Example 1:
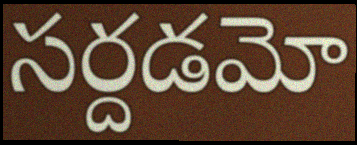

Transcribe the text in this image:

సర్దడమో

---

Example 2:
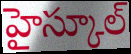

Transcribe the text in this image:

హైస్కూల్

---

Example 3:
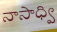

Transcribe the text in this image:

నాసాధ్వి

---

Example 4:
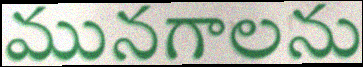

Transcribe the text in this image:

మునగాలను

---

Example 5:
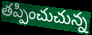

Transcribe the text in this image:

తప్పించుచున్న